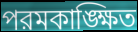
পরমকাঙ্ক্ষিত